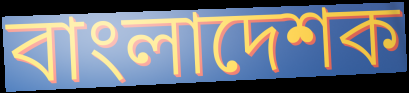
বাংলাদেশক